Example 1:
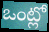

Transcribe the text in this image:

ఒంట్లో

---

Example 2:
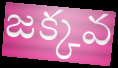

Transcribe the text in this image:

జక్కవ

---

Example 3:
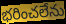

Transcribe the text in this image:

భరించలేను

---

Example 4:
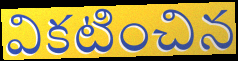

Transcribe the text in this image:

వికటించిన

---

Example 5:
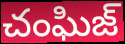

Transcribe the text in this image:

చంఘిజ్